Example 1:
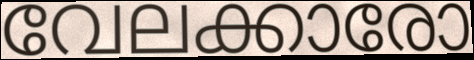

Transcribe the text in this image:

വേലക്കാരോ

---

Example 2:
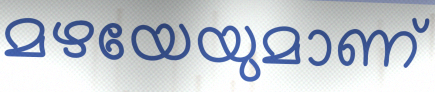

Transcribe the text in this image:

മഴയേയുമാണ്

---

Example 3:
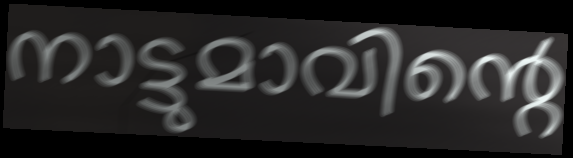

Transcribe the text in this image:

നാട്ടുമാവിന്റെ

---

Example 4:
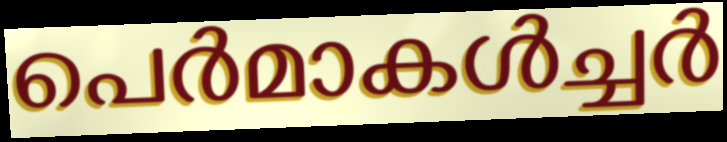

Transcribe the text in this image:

പെർമാകൾച്ചർ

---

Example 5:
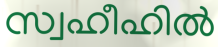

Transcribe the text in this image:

സ്വഹീഹിൽ